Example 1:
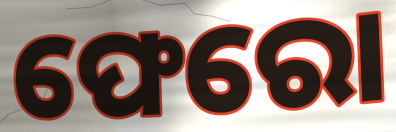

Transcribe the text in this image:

ଫେରୋ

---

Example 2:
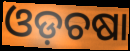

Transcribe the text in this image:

ଓଡ଼ଚଷା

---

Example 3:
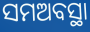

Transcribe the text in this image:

ସମଅବସ୍ଥା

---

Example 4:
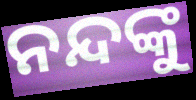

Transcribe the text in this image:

ନନ୍ଦଙ୍କୁ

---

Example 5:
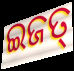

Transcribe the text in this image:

ଇଜତ୍